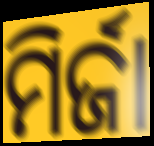
ମିର୍ଜା